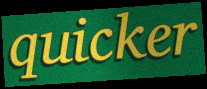
quicker